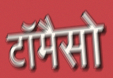
टॉमैसो